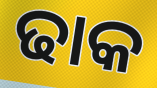
ଢାକ